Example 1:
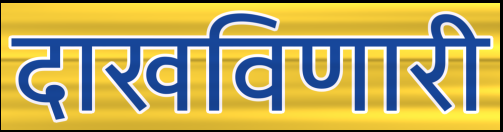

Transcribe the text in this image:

दाखविणारी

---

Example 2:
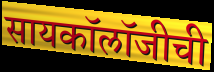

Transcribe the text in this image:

सायकॉलॉजीची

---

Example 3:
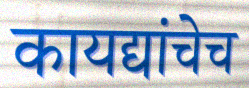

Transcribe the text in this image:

कायद्यांचेच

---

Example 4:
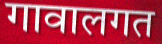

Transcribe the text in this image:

गावालगत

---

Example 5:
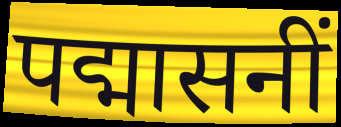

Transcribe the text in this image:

पद्मासनीं